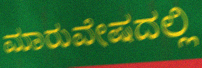
ಮಾರುವೇಷದಲ್ಲಿ